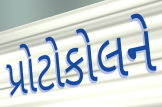
પ્રોટોકોલને